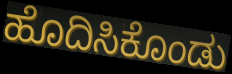
ಹೊದಿಸಿಕೊಂಡು